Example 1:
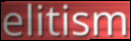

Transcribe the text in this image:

elitism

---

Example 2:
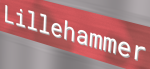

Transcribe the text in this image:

Lillehammer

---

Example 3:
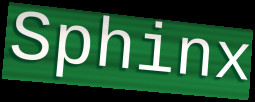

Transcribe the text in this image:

Sphinx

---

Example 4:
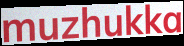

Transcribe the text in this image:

muzhukka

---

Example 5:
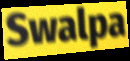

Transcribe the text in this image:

Swalpa